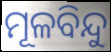
ମୂଳବିନ୍ଦୁ